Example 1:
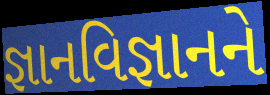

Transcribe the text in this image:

જ્ઞાનવિજ્ઞાનને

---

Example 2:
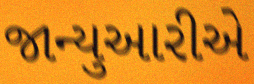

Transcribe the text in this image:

જાન્યુઆરીએ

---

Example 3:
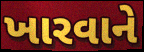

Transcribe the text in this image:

ખારવાને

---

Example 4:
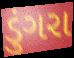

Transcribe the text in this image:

ડુંગરા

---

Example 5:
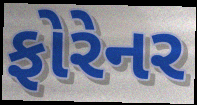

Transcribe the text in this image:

ફોરેનર